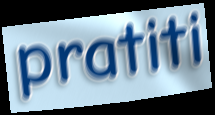
pratiti